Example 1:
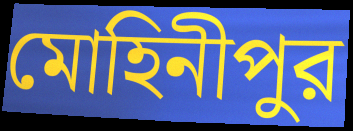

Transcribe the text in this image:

মোহিনীপুর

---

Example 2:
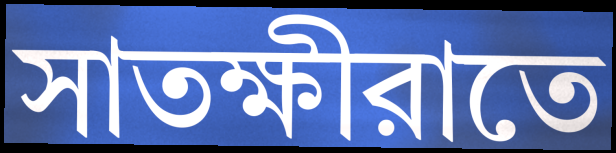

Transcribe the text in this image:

সাতক্ষীরাতে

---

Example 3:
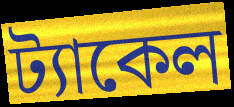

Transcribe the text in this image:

ট্যাকেল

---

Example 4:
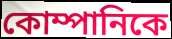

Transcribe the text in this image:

কোম্পানিকে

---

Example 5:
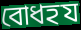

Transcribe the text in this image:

বোধহয